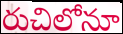
రుచిలోనూ